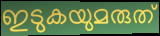
ഇടുകയുമരുത്